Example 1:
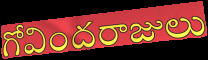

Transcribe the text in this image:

గోవిందరాజులు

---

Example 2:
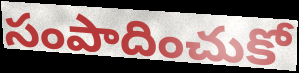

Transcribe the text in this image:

సంపాదించుకో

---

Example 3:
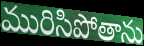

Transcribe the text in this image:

మురిసిపోతాను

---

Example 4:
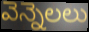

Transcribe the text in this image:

వెన్నెలలు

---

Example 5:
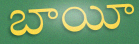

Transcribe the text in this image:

బాయీ